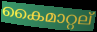
കൈമാറ്റല്